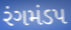
રંગમંડપ